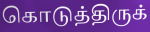
கொடுத்திருக்